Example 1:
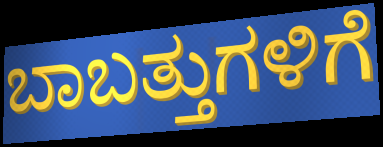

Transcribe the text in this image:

ಬಾಬತ್ತುಗಳಿಗೆ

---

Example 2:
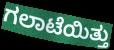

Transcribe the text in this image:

ಗಲಾಟೆಯಿತ್ತು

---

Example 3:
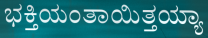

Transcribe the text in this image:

ಭಕ್ತಿಯಂತಾಯಿತ್ತಯ್ಯಾ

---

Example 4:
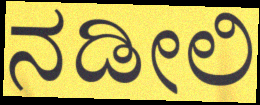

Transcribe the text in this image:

ನಡೀಲಿ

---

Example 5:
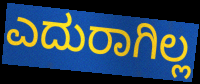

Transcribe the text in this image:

ಎದುರಾಗಿಲ್ಲ